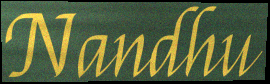
Nandhu